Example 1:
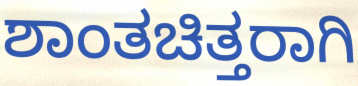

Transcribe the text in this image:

ಶಾಂತಚಿತ್ತರಾಗಿ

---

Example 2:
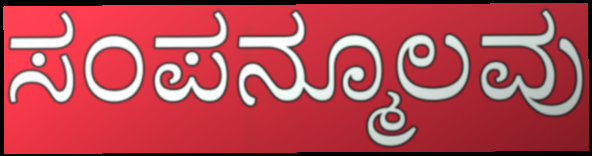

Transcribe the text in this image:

ಸಂಪನ್ಮೂಲವು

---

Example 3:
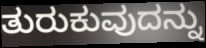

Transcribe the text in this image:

ತುರುಕುವುದನ್ನು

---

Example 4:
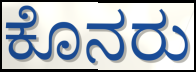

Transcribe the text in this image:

ಕೊನರು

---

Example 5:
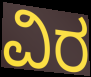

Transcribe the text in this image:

ವಿರ